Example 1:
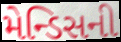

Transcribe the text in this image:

મેન્ડિસની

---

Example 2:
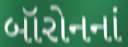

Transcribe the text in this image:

બૉરોનનાં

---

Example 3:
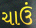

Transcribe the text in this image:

ચાઉં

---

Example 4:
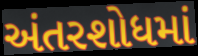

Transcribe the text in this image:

અંતરશોધમાં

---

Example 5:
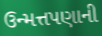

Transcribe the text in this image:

ઉન્મત્તપણાની